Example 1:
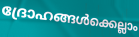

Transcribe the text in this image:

ദ്രോഹങ്ങൾക്കെല്ലാം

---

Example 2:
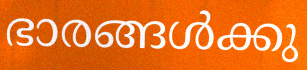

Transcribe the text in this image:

ഭാരങ്ങൾക്കു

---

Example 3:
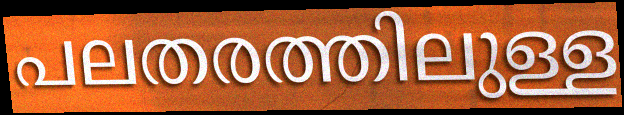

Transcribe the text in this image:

പലതരത്തിലുള്ള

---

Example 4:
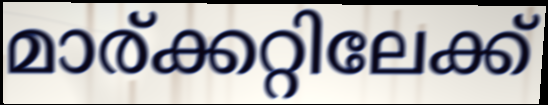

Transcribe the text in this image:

മാര്ക്കറ്റിലേക്ക്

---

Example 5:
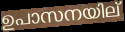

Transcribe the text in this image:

ഉപാസനയില്